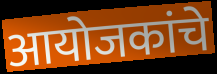
आयोजकांचे